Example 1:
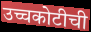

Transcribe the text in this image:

उच्चकोटीची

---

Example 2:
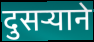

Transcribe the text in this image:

दुसर्‍याने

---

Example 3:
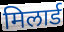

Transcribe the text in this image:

मिलार्ड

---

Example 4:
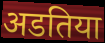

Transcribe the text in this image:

अडतिया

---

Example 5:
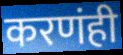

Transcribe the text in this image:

करणंही